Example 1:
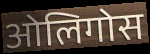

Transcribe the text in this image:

ओलिगोस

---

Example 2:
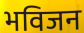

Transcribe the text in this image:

भविजन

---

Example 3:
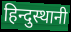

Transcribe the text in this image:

हिन्दुस्थानी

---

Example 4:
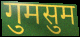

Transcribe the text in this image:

गुमसुम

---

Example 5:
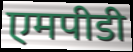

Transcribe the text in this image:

एमपीडी